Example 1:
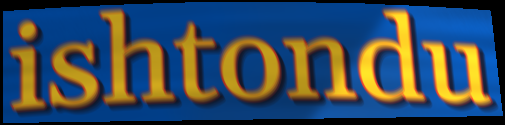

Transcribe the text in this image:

ishtondu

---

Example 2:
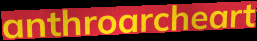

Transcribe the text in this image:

anthroarcheart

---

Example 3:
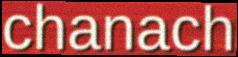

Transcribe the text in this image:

chanach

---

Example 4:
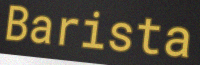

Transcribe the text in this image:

Barista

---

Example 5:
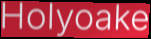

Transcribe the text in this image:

Holyoake